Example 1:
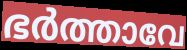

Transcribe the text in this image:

ഭർത്താവേ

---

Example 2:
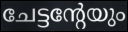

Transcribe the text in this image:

ചേട്ടന്റേയും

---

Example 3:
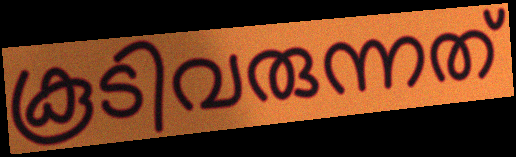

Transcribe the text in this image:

കൂടിവരുന്നത്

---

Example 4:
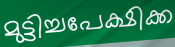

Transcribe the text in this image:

മുട്ടിച്ചപേക്ഷിക്ക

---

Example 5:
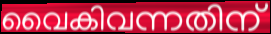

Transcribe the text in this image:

വൈകിവന്നതിന്